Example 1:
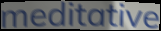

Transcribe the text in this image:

meditative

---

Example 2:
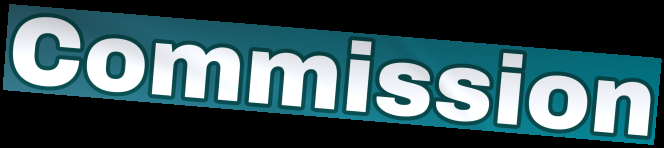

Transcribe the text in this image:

Commission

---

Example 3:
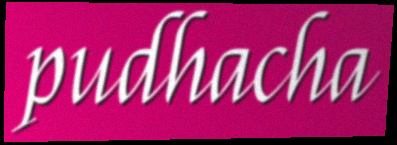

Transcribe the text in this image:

pudhacha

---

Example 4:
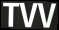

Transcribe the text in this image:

TVV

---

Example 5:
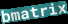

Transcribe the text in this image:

bmatrix